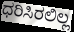
ಧರಿಸಿರಲಿಲ್ಲ